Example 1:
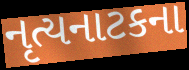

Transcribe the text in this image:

નૃત્યનાટકના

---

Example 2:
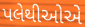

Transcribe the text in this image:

પલેથીઓએ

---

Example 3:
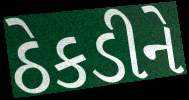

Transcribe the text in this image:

ઠેકડીને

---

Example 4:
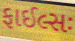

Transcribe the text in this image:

ફાઈલ્સઃ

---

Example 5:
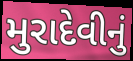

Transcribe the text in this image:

મુરાદેવીનું